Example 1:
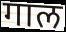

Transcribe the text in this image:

गाल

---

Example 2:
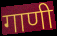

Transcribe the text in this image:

गाणी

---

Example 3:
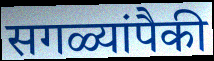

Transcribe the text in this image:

सगळ्यांपैकी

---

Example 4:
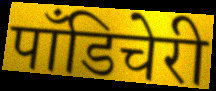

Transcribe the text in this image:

पॉंडिचेरी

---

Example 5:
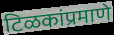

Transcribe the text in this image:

टिळकांप्रमाणे